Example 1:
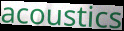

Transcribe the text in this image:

acoustics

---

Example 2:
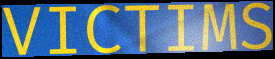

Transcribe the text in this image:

VICTIMS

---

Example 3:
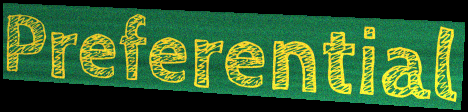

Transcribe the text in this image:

Preferential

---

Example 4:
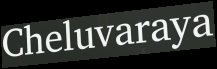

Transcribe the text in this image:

Cheluvaraya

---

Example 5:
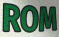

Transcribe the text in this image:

ROM